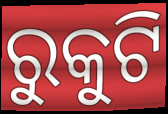
ରୁକୁଟି